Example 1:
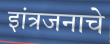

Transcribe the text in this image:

इांत्रजनाचे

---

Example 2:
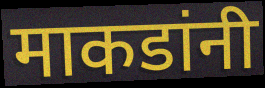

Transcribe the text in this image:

माकडांनी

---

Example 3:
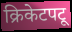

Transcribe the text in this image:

क्रिकेटपटू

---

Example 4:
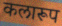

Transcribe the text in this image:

कलारूप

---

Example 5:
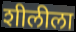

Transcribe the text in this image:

शीलीला